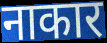
नाकार